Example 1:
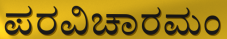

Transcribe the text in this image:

ಪರವಿಚಾರಮಂ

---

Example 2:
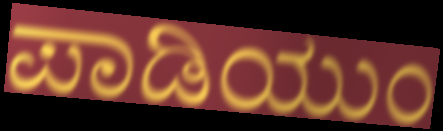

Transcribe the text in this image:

ಪಾಡಿಯುಂ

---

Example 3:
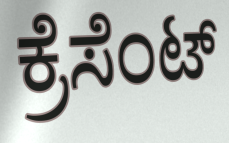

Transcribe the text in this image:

ಕ್ರೆಸೆಂಟ್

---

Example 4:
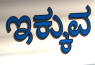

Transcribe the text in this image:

ಇಕ್ಕುವ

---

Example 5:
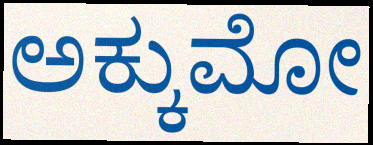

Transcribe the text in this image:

ಅಕ್ಕುಮೋ